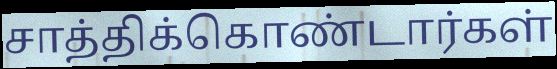
சாத்திக்கொண்டார்கள்